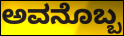
ಅವನೊಬ್ಬ